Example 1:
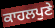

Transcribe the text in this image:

ਕਾਹਲਪੁਣੇ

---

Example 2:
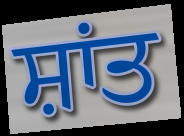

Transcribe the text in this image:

ਸ਼ਾਂਤ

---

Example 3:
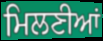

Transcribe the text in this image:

ਮਿਲਣੀਆਂ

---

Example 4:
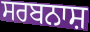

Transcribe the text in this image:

ਸਰਬਨਾਸ਼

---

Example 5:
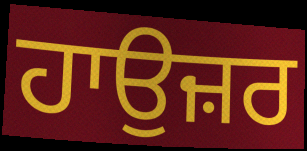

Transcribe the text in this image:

ਹਾਉਜ਼ਰ